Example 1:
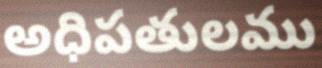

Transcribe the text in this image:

అధిపతులము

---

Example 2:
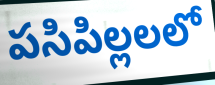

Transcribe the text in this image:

పసిపిల్లలలో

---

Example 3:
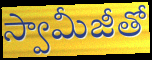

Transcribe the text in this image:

స్వామీజీతో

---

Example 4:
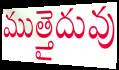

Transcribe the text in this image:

ముత్తైదువు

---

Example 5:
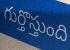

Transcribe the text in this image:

గుర్తొస్తుంది